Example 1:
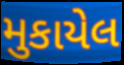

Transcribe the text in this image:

મુકાયેલ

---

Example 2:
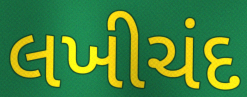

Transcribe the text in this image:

લખીચંદ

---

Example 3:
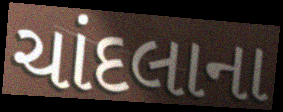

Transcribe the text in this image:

ચાંદલાના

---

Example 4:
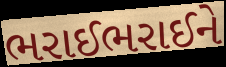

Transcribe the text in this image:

ભરાઈભરાઈને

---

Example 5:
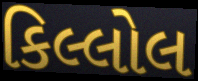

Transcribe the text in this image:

કિલ્લોલ